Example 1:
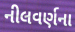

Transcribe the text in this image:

નીલવર્ણના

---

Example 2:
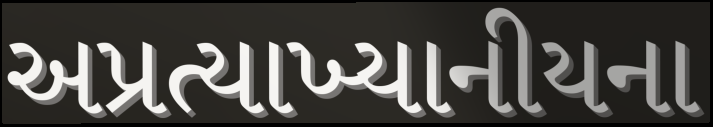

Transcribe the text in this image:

અપ્રત્યાખ્યાનીયના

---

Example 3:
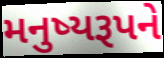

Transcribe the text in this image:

મનુષ્યરૂપને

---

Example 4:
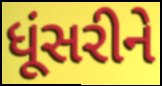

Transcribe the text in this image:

ધૂંસરીને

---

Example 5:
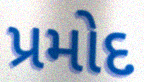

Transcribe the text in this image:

પ્રમોદ